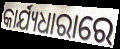
କାର୍ଯ୍ୟଧାରାରେ